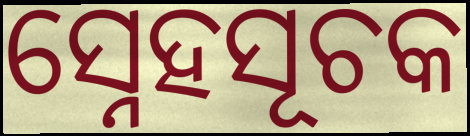
ସ୍ନେହସୂଚକ